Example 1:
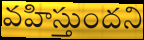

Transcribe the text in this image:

వహిస్తుందని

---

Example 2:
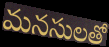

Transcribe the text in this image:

మనసులతో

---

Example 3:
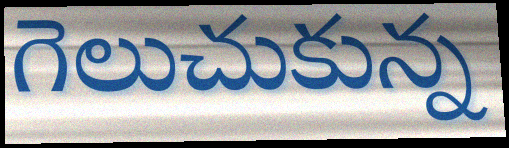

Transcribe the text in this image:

గెలుచుకున్న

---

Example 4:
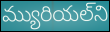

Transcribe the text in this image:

మ్యురియల్‌ని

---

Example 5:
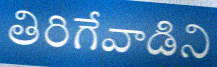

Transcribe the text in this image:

తిరిగేవాడిని